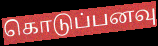
கொடுப்பனவு